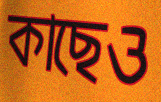
কাছেও